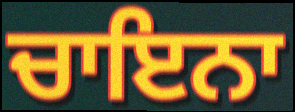
ਚਾਇਨਾ